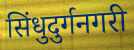
सिंधुदुर्गनगरी